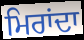
ਮਿਰਾਂਦਾ